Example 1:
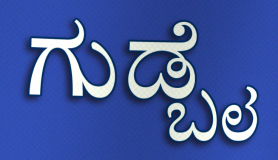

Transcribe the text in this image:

ಗುಡ್ಬೈ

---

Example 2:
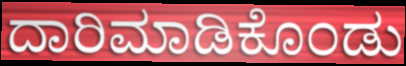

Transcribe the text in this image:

ದಾರಿಮಾಡಿಕೊಂಡು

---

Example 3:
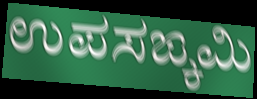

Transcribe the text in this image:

ಉಪಸಙ್ಕಮಿ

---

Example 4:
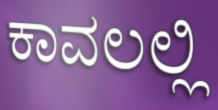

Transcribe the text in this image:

ಕಾವಲಲ್ಲಿ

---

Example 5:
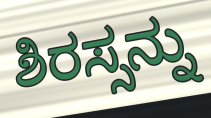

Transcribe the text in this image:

ಶಿರಸ್ಸನ್ನು